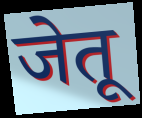
जेतू